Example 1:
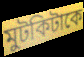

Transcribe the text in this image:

মুটকিটাকে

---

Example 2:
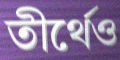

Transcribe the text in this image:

তীর্থেও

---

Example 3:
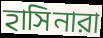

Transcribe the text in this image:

হাসিনারা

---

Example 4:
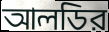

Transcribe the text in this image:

আলডির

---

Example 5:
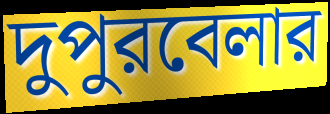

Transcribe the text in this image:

দুপুরবেলার